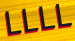
LLLL